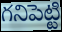
గనిపెట్టి